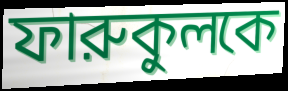
ফারুকুলকে